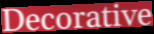
Decorative